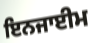
ਇਨਜਾਈਮ